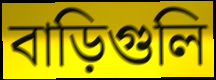
বাড়িগুলি